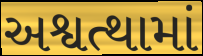
અશ્વત્થામાં